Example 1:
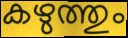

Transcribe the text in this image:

കഴുത്തും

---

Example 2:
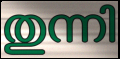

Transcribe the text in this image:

തുന്നി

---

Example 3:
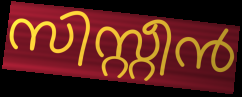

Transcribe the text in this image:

സിസ്റ്റീൻ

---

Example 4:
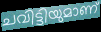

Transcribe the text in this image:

ചവിട്ടിയുമാണ്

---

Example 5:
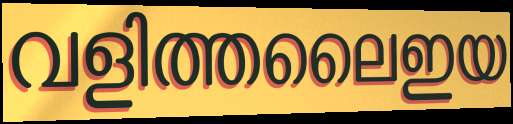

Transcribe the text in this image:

വളിത്തലൈഇയ